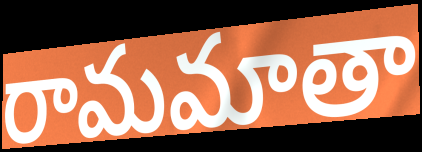
రామమాతా